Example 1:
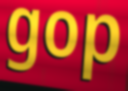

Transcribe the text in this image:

gop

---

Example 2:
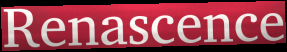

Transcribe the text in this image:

Renascence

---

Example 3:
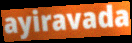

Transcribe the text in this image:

ayiravada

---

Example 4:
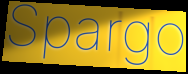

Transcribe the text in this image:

Spargo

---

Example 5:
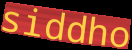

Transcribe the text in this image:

siddho